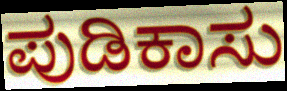
ಪುಡಿಕಾಸು